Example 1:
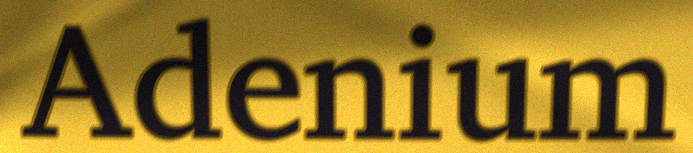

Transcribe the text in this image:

Adenium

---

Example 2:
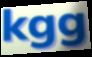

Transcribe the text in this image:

kgg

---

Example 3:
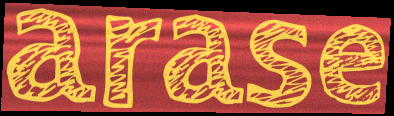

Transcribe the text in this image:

arase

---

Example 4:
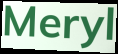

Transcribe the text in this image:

Meryl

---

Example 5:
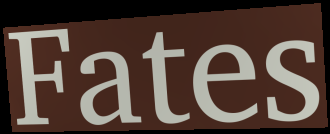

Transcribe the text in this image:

Fates